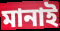
মানাই